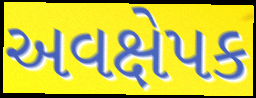
અવક્ષેપક